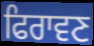
ਫਿਰਾਵਣ